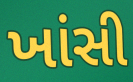
ખાંસી